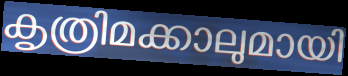
കൃത്രിമക്കാലുമായി